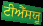
ਟੀਐੱਸਯੂ